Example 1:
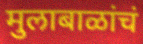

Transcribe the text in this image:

मुलाबाळांचं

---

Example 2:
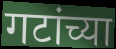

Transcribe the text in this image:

गटांच्या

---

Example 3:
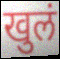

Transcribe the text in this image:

खुलं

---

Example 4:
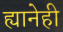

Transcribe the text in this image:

ह्यानेही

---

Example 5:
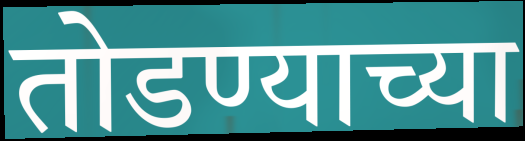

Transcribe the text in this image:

तोडण्याच्या